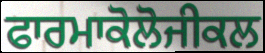
ਫਾਰਮਾਕੋਲੋਜੀਕਲ